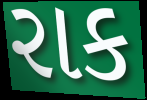
રાક